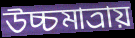
উচ্চমাত্রায়